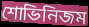
শোভিনিজম